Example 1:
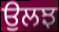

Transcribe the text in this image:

ਉਲਝ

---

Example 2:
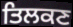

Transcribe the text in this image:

ਤਿਲਕਣ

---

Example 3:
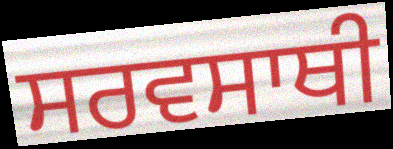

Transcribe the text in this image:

ਸਰਵਸਾਥੀ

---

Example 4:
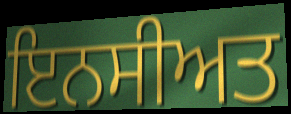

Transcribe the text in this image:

ਇਨਸੀਅਤ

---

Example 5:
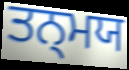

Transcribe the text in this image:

ਤਨ੍ਮਯ